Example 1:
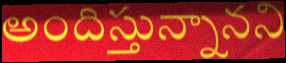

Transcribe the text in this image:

అందిస్తున్నానని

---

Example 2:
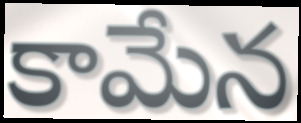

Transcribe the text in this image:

కామేన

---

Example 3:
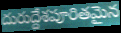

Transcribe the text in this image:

దురుద్దేశపూరితమైన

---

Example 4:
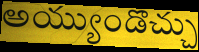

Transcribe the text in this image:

అయ్యుండొచ్చు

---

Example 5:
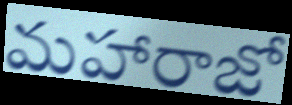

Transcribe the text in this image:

మహారాజో